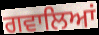
ਗਵਾਲਿਆਂ